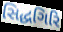
સિદ્ધગિરિ